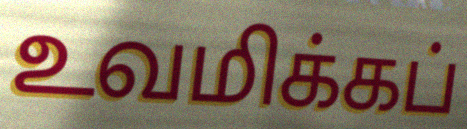
உவமிக்கப்